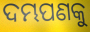
ଦମ୍ଭପଣକୁ